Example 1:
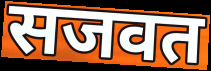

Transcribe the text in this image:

सजवत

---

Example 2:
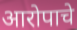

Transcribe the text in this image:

आरोपाचे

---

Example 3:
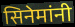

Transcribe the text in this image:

सिनेमांनी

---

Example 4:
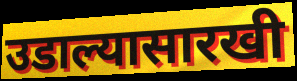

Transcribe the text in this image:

उडाल्यासारखी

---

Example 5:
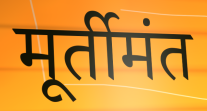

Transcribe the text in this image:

मूर्तीमंत